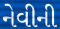
નેવીની